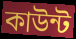
কাউন্ট